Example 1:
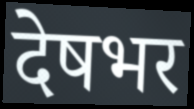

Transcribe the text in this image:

देषभर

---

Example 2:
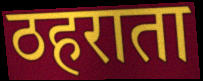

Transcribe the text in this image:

ठहराता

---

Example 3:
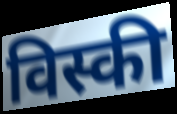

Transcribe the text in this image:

विस्की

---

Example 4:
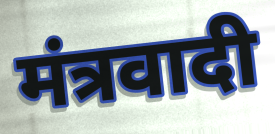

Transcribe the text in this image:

मंत्रवादी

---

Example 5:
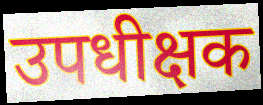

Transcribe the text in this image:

उपधीक्षक